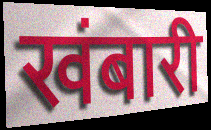
खंबारी